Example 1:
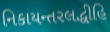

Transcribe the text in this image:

નિકાયન્તરલદ્ધીહિ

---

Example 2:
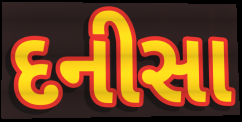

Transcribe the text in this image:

દનીસા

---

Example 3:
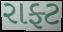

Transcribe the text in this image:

રાફ્ટ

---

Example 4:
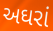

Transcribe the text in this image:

અઘરાં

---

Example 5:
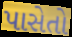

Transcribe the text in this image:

પાસેતો